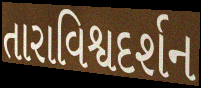
તારાવિશ્વદર્શન